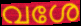
വശേ